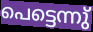
പെട്ടെന്നു്